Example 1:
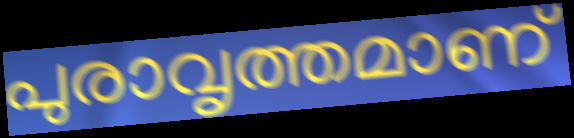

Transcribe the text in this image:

പുരാവൃത്തമാണ്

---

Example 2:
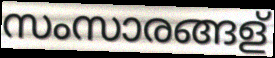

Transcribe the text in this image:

സംസാരങ്ങള്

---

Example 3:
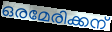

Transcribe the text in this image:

ഒരമേരിക്കന്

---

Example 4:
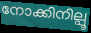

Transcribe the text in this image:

നോക്കിനില്പൂ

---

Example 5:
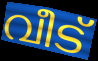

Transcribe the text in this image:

വീട്